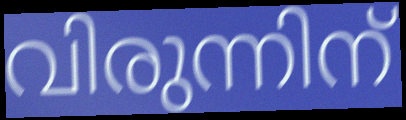
വിരുന്നിന്